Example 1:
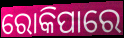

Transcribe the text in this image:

ରୋକିପାରେ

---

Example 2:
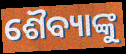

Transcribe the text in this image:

ଶୈବ୍ୟାଙ୍କୁ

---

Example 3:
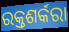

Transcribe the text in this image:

ରକ୍ତଶର୍କରା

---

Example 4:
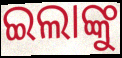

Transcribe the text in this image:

ଇଲାଙ୍କୁ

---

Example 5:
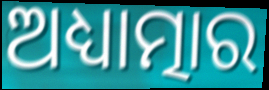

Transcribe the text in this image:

ଅଧ୍ୟାତ୍ମାର